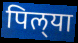
पिल्या